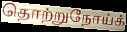
தொற்றுநோய்க்